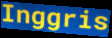
Inggris